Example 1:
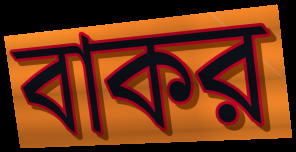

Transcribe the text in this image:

বাকর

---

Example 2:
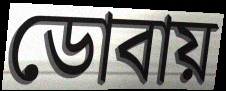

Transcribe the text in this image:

ডোবায়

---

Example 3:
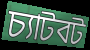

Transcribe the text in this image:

চ্যাটবট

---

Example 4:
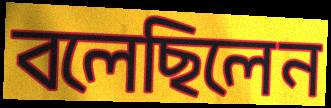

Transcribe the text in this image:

বলেছিলেন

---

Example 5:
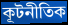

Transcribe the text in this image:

কূটনীতিক